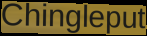
Chingleput